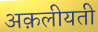
अक़लीयती